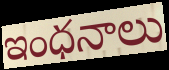
ఇంధనాలు